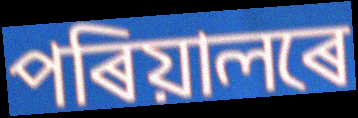
পৰিয়ালৰে